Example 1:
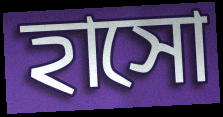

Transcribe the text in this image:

হাসো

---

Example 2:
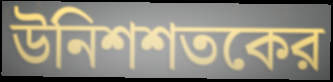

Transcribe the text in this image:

উনিশশতকের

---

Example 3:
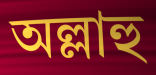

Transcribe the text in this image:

অল্লাহু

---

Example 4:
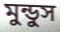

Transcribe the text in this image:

মুন্ডুস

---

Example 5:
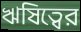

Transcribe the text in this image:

ঋষিত্বের